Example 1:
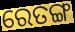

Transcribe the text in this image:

ରେତଙ୍ଗ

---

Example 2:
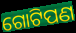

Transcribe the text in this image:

ଗୋଟିପଣ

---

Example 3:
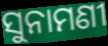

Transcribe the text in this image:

ସୁନାମଣୀ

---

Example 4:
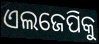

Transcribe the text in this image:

ଏଲଜେପିକୁ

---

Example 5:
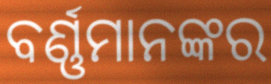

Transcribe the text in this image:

ବର୍ଣ୍ଣମାନଙ୍କର